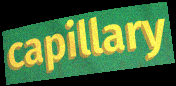
capillary